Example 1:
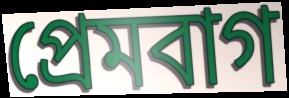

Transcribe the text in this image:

প্রেমবাগ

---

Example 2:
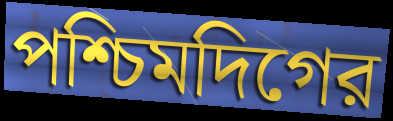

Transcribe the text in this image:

পশ্চিমদিগের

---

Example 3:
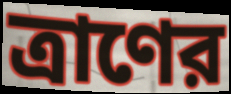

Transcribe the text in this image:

ত্রাণের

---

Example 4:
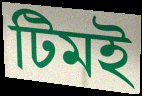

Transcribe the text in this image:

টিমই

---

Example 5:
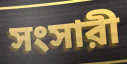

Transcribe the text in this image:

সংসারী